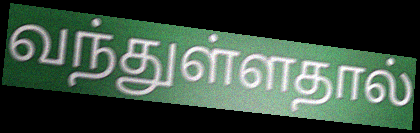
வந்துள்ளதால்